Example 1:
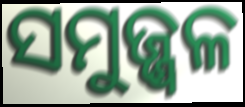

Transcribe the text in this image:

ସମୁଜ୍ଜ୍ୱଳ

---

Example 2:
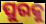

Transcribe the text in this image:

ପୁରକୁ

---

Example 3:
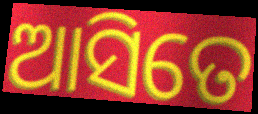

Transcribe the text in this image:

ଆସିତେ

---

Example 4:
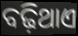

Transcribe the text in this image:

ବଢ଼ିଥାଏ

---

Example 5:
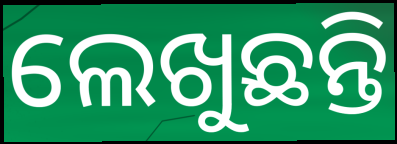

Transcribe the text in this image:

ଲେଖୁଛନ୍ତି